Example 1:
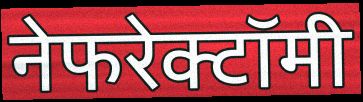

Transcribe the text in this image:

नेफरेक्टॉमी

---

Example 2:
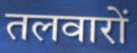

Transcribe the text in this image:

तलवारों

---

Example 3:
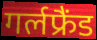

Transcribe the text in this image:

गर्लफ्रैंड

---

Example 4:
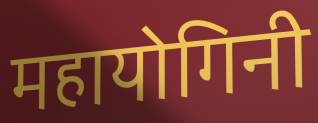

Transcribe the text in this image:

महायोगिनी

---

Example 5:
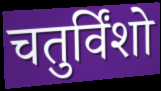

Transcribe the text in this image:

चतुर्विंशो